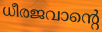
ധീരജവാന്റെ